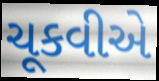
ચૂકવીએ